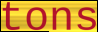
tons